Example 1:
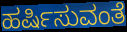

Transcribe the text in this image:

ಹರ್ಷಿಸುವಂತೆ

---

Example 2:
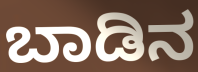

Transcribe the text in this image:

ಬಾಡಿನ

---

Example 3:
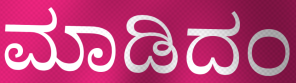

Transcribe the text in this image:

ಮಾಡಿದಂ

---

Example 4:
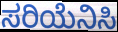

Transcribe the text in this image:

ಸರಿಯೆನಿಸಿ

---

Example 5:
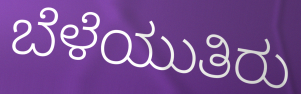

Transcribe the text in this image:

ಬೆಳೆಯುತಿರು